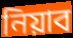
নিয়াব